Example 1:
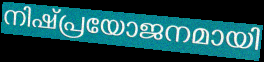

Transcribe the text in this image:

നിഷ്പ്രയോജനമായി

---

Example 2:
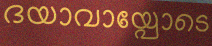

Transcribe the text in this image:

ദയാവായ്പോടെ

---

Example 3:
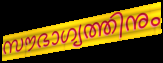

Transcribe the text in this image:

സൗഭാഗ്യത്തിനും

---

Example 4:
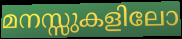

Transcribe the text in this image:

മനസ്സുകളിലോ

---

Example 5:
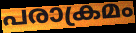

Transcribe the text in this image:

പരാക്രമം